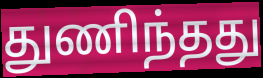
துணிந்தது